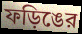
ফড়িঙের